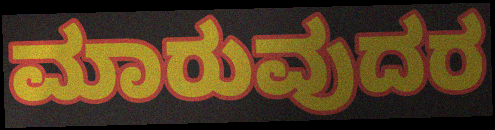
ಮಾರುವುದರ